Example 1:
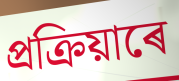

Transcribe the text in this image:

প্ৰক্ৰিয়াৰে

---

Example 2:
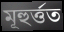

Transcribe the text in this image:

মূহুৰ্ত্তত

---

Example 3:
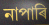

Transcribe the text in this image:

নাপাৰি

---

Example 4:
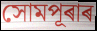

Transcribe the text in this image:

সোমপূৰাৰ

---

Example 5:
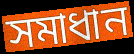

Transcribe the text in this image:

সমাধান